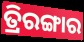
ତ୍ରିରଙ୍ଗାର